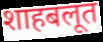
शाहबलूत